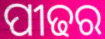
ପୀଢର